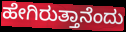
ಹೇಗಿರುತ್ತಾನೆಂದು